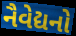
નૈવેદ્યનો